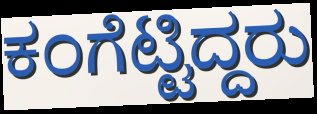
ಕಂಗೆಟ್ಟಿದ್ದರು